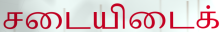
சடையிடைக்